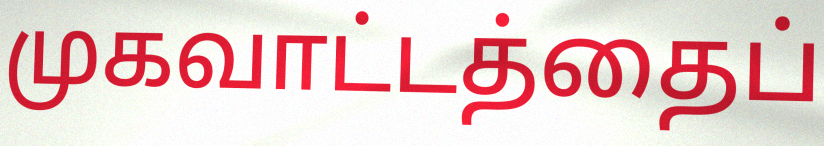
முகவாட்டத்தைப்